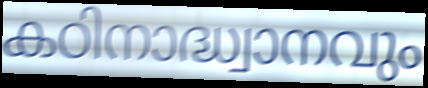
കഠിനാദ്ധ്വാനവും